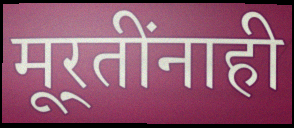
मूर्तींनाही